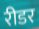
रीडर